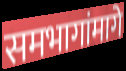
समभागांमागे